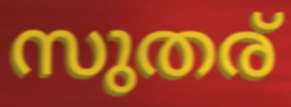
സുതര്